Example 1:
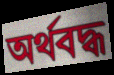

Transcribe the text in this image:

অর্থবদ্ধ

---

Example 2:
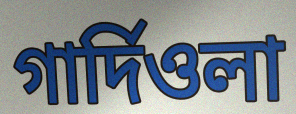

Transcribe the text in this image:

গার্দিওলা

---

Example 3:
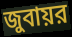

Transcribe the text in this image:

জুবায়র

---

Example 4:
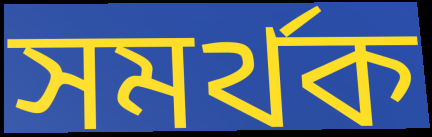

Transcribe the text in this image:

সমর্থক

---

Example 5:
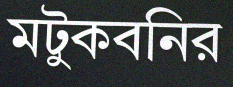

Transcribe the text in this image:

মটুকবনির